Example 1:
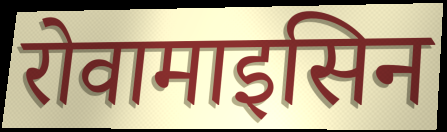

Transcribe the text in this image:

रोवामाइसिन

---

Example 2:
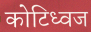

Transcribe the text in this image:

कोटिध्वज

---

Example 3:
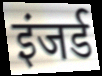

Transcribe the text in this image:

इंजर्ड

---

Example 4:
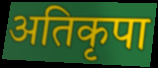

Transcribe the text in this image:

अतिकृपा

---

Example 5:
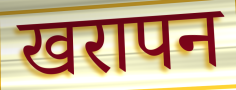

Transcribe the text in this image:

खरापन